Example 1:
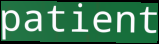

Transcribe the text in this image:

patient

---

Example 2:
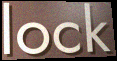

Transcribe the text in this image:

lock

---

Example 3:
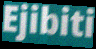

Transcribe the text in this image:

Ejibiti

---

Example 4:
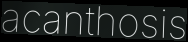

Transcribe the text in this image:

acanthosis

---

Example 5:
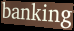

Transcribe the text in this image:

banking